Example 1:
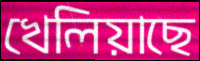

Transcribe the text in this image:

খেলিয়াছে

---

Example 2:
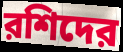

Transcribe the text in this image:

রশিদের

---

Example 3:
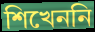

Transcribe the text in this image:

শিখেননি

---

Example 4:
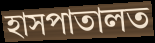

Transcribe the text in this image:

হাসপাতালত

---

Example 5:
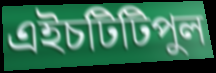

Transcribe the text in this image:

এইচটিটিপুল